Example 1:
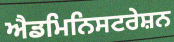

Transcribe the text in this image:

ਐਡਮਿਨਿਸਟਰੇਸ਼ਨ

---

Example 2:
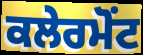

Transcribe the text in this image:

ਕਲੇਰਮੋਂਟ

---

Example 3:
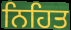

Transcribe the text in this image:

ਨਿਹਿਤ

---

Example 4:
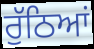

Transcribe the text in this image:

ਰੁੱਠਿਆਂ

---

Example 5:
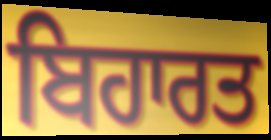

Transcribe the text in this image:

ਬਿਹਾਰਤ